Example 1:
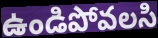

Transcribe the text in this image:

ఉండిపోవలసి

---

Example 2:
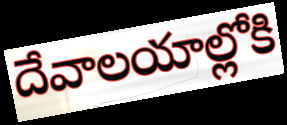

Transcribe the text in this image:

దేవాలయాల్లోకి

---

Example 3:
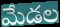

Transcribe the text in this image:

మేడల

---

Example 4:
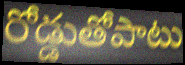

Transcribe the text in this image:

రోడ్డుతోపాటు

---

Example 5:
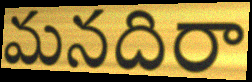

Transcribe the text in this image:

మనదిరా